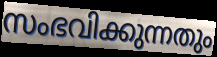
സംഭവിക്കുന്നതും